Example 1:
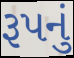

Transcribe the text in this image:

રૂપનું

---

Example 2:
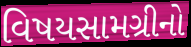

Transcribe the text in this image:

વિષયસામગ્રીનો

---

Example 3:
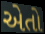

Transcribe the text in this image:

એતો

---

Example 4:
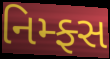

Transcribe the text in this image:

નિમ્ફ્સ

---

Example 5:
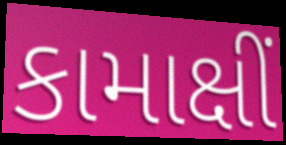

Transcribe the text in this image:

કામાક્ષીં